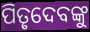
ପିତୃଦେବଙ୍କୁ